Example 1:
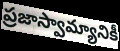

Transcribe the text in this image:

ప్రజాస్వామ్యానికీ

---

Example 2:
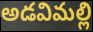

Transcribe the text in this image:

అడవిమల్లి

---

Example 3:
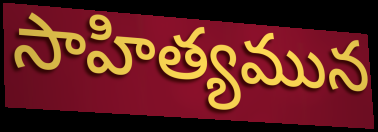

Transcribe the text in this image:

సాహిత్యమున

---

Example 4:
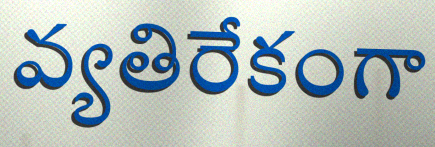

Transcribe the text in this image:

వ్యతిరేకంగా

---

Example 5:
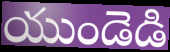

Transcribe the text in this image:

యుండెడి